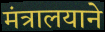
मंत्रालयाने